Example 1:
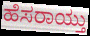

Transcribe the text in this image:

ಹೆಸರಾಯ್ತು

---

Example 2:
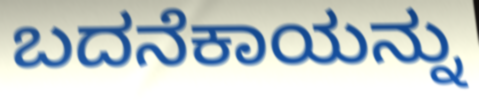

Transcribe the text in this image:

ಬದನೆಕಾಯನ್ನು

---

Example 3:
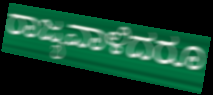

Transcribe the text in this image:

ರಾಜ್ಯವಾಳಿದರೂ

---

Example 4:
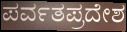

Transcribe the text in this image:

ಪರ್ವತಪ್ರದೇಶ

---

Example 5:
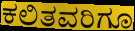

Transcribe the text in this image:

ಕಲಿತವರಿಗೂ